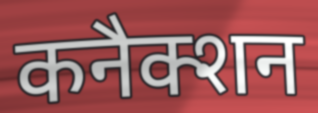
कनैक्शन